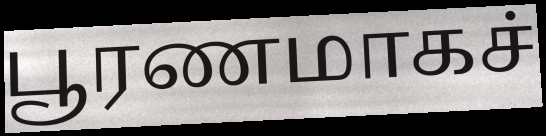
பூரணமாகச்